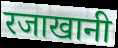
रजाखानी